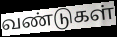
வண்டுகள்